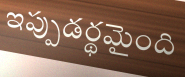
ఇప్పుడర్థమైంది